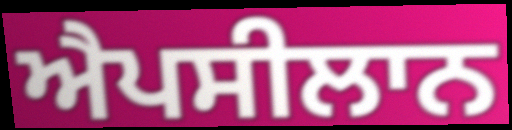
ਐਪਸੀਲਾਨ